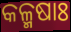
କଳ୍ମଷାଃ